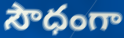
సౌధంగా